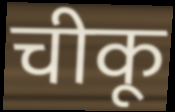
चीकू